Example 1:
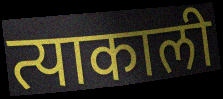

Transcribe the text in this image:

त्याकाली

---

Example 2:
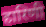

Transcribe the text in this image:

हारिणी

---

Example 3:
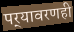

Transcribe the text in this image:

पर्यावरणही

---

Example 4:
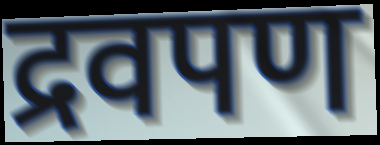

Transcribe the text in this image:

द्रवपण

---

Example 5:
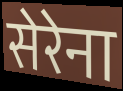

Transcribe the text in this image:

सेरेना